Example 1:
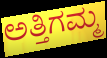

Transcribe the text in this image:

ಅತ್ತಿಗಮ್ಮ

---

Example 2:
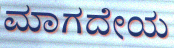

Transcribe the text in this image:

ಮಾಗದೇಯ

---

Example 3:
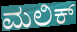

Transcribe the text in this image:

ಮಲಿಕ್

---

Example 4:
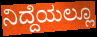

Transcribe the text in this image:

ನಿದ್ದೆಯಲ್ಲೂ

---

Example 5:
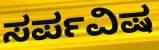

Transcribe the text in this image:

ಸರ್ಪವಿಷ